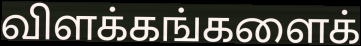
விளக்கங்களைக்